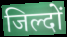
जिल्दों